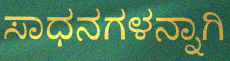
ಸಾಧನಗಳನ್ನಾಗಿ